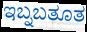
ಇಬ್ನಬತೂತ